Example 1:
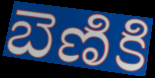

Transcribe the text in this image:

బెణికి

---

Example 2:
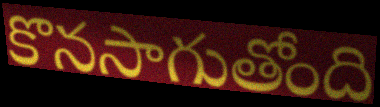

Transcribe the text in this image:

కొనసాగుతోంది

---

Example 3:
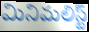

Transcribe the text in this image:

మినిమలిస్ట్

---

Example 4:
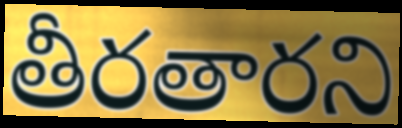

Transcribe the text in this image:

తీరతారని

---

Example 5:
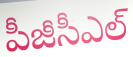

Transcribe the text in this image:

పీజీసీఎల్